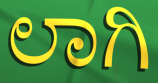
ಲಾಗಿ